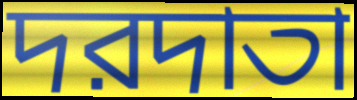
দরদাতা